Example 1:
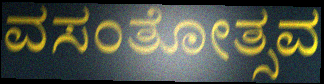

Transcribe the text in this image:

ವಸಂತೋತ್ಸವ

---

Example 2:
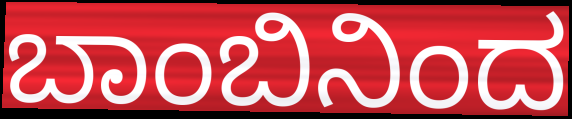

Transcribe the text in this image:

ಬಾಂಬಿನಿಂದ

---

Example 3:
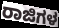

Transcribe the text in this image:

ರಾಜಿಗಳ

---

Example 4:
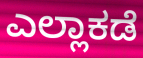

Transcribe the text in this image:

ಎಲ್ಲಾಕಡೆ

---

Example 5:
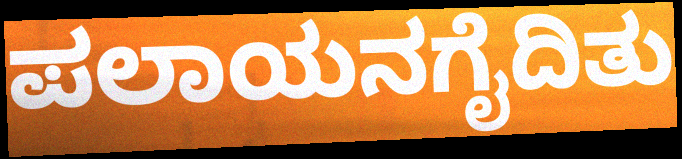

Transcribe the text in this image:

ಪಲಾಯನಗೈದಿತು